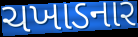
ચખાડનાર